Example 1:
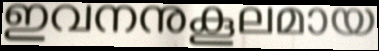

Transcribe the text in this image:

ഇവനനുകൂലമായ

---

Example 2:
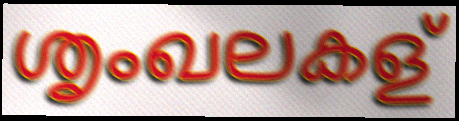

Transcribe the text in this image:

ശൃംഖലകള്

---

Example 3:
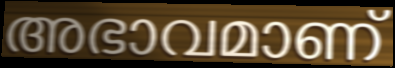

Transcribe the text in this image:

അഭാവമാണ്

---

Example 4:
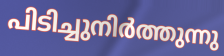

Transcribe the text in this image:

പിടിച്ചുനിർത്തുന്നു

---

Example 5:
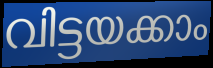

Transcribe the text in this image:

വിട്ടയക്കാം